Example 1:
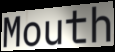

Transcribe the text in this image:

Mouth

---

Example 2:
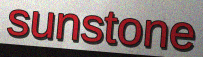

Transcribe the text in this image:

sunstone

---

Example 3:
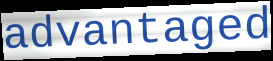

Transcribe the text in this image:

advantaged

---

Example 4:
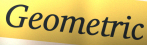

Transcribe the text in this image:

Geometric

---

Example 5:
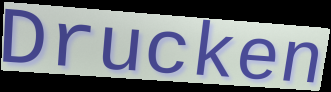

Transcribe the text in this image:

Drucken